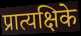
प्रात्यक्षिके